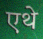
एथे